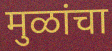
मुळांचा